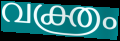
വക്ത്രം